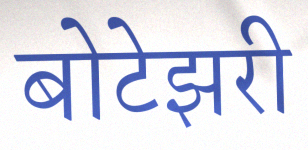
बोटेझरी